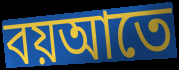
বয়আতে